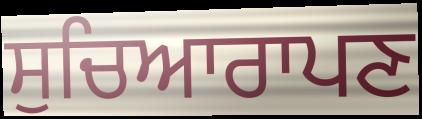
ਸੁਚਿਆਰਾਪਣ